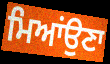
ਮਿਆਂਉਣਾ